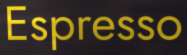
Espresso